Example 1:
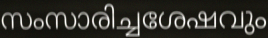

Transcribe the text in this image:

സംസാരിച്ചശേഷവും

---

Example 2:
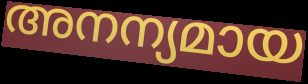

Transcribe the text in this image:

അനന്യമായ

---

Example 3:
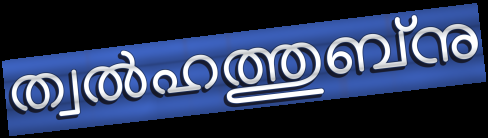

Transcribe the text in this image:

ത്വൽഹത്തുബ്നു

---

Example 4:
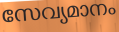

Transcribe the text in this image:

സേവ്യമാനം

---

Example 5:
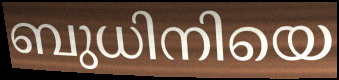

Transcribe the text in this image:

ബുധിനിയെ